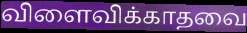
விளைவிக்காதவை